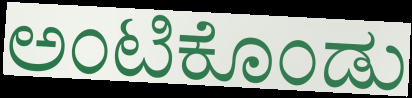
ಅಂಟಿಕೊಂಡು